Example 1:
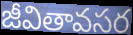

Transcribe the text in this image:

జీవితావసర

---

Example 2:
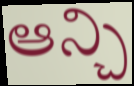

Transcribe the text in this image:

ఆన్చి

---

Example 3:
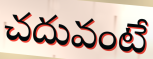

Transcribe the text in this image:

చదువంటే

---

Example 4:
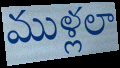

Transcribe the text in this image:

ముళ్లలా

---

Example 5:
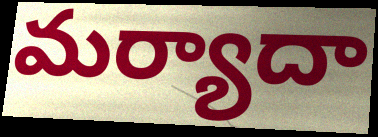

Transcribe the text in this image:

మర్యాదా